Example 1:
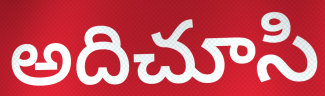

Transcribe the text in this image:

అదిచూసి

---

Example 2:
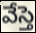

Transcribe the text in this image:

వేస్తె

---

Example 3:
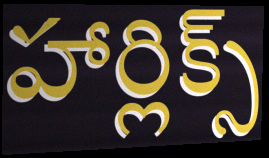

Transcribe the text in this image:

హార్లిక్స్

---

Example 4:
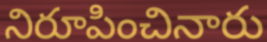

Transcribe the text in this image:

నిరూపించినారు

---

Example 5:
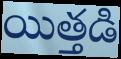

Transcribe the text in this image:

యిత్తడి